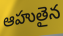
ఆహుతైన